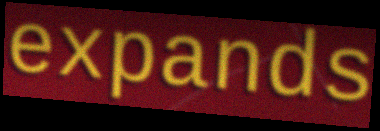
expands